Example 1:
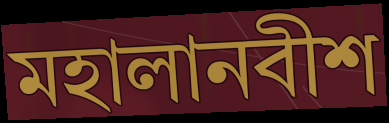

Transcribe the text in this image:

মহালানবীশ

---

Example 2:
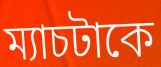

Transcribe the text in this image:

ম্যাচটাকে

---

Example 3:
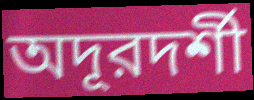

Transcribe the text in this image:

অদূরদর্শী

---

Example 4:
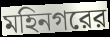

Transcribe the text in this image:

মহিনগরের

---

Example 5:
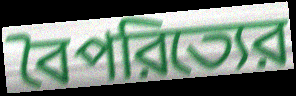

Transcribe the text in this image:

বৈপরিত্যের